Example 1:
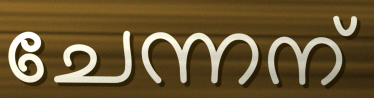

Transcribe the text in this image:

ചേന്നന്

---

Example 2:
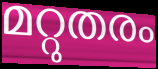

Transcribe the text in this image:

മറ്റുതരം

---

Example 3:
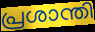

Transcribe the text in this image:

പ്രശാന്തി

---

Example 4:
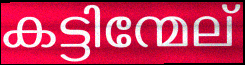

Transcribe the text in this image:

കട്ടിന്മേല്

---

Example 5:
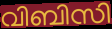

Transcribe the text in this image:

വിബിസി